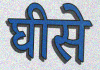
घीसे